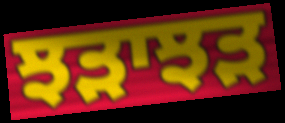
ਝੜਾਝੜ